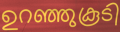
ഉറഞ്ഞുകൂടി